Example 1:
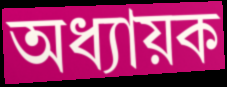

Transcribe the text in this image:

অধ্যায়ক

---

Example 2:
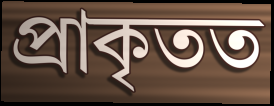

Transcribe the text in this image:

প্ৰাকৃতত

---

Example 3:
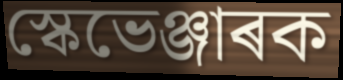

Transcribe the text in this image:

স্কেভেঞ্জাৰক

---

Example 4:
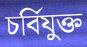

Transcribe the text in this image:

চৰ্বিযুক্ত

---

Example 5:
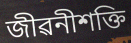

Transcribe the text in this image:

জীৱনীশক্তি